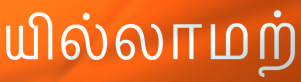
யில்லாமற்